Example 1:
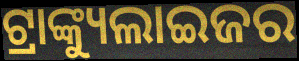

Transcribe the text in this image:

ଟ୍ରାଙ୍କ୍ୟୁଲାଇଜର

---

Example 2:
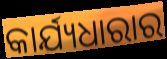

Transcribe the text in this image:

କାର୍ଯ୍ୟଧାରାର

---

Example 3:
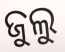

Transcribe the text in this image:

ଜୁଲୁ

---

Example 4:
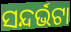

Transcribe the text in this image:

ସନ୍ଦର୍ଭଟା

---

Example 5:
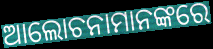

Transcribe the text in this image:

ଆଲୋଚନାମାନଙ୍କରେ